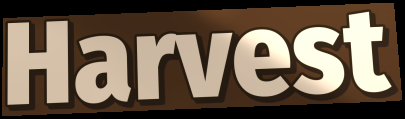
Harvest